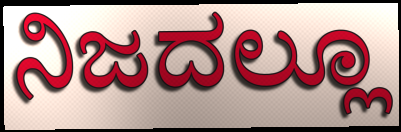
ನಿಜದಲ್ಲೂ